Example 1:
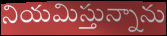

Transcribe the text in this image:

నియమిస్తున్నాను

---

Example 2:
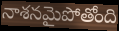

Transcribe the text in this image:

నాశనమైపోతోంది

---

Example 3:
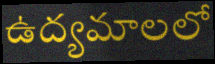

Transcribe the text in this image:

ఉద్యమాలలో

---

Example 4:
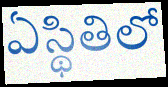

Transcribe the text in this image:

ఏస్థితిలో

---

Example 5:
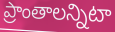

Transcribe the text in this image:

ప్రాంతాలన్నిటా